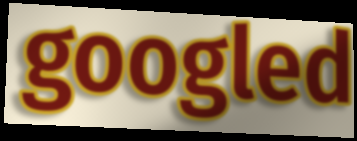
googled